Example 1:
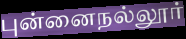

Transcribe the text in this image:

புன்னைநல்லூர்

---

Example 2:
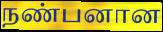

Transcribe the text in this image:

நண்பனான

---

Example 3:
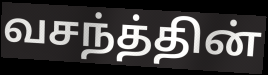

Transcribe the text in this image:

வசந்த்தின்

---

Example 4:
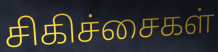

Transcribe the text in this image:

சிகிச்சைகள்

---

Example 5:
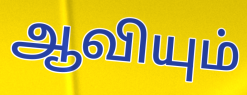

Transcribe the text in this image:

ஆவியும்